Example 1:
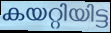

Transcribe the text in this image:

കയറ്റിയിട്ട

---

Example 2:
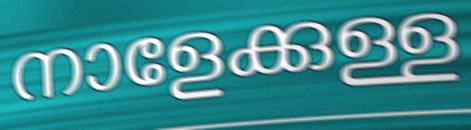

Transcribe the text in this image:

നാളേക്കുള്ള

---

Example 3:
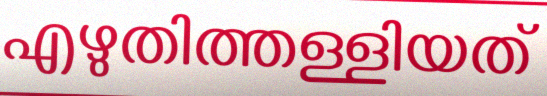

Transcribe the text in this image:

എഴുതിത്തള്ളിയത്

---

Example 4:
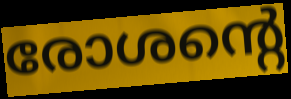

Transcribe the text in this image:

രോശന്റെ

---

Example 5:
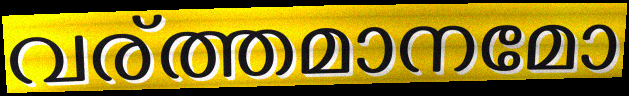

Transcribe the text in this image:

വര്ത്തമാനമോ